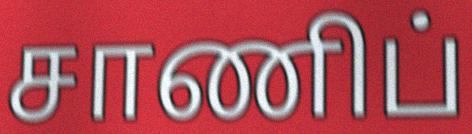
சாணிப்